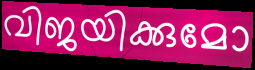
വിജയിക്കുമോ